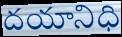
దయానిధి